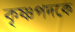
কৃষ্ণপদকে